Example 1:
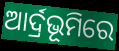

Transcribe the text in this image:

ଆର୍ଦ୍ରଭୂମିରେ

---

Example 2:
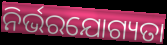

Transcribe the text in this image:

ନିର୍ଭରଯୋଗ୍ୟତା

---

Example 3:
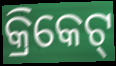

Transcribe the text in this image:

କ୍ରିକେଟ୍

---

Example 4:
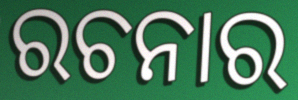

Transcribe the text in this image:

ରଚନାର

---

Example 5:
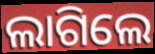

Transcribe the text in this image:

ଲାଗିଲେ